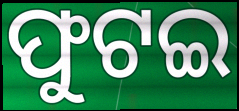
ଫୁଟଇ